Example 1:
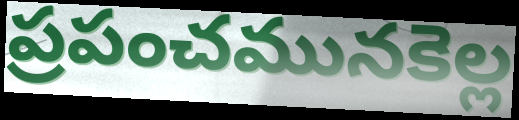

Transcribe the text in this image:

ప్రపంచమునకెల్ల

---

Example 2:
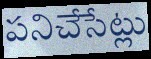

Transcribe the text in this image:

పనిచేసేట్లు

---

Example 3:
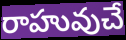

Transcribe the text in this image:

రాహువుచే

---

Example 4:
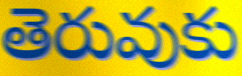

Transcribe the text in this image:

తెరువుకు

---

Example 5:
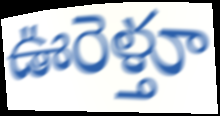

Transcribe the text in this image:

ఊరెళ్తూ